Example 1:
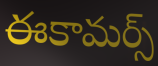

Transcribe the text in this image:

ఈకామర్స్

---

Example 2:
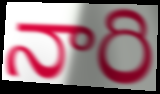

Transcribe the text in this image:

నారి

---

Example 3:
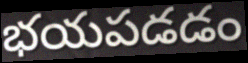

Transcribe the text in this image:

భయపడడం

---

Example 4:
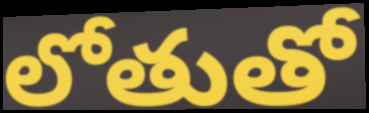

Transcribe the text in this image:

లోతుతో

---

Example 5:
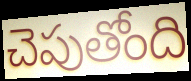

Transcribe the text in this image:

చెపుతోంది